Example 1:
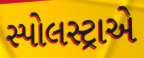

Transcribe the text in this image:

સ્પોલસ્ટ્રાએ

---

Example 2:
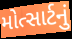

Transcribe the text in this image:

મોત્સાર્ટનું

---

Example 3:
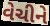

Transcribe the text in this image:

વેચીને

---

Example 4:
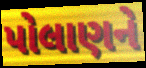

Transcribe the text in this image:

પોલાણને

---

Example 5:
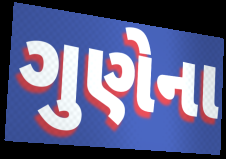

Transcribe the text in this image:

ગુણેના